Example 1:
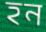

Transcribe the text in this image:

হন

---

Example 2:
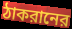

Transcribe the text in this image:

ঠাকরানের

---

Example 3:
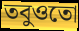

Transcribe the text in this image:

তবুওতো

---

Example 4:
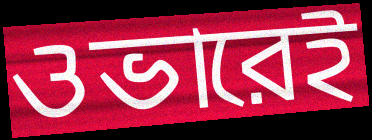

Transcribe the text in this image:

ওভারেই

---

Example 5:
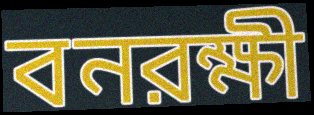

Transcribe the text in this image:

বনরক্ষী